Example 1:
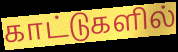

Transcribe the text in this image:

காட்டுகளில்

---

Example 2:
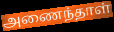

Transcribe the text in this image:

அணைந்தாள்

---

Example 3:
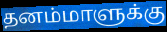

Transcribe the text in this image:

தனம்மாளுக்கு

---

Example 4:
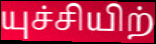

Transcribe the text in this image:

யுச்சியிற்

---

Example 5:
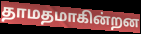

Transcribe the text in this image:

தாமதமாகின்றன